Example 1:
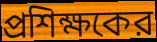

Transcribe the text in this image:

প্রশিক্ষকের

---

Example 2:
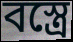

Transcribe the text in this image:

বস্ত্রে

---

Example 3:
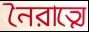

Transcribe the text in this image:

নৈরাত্মে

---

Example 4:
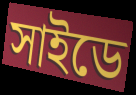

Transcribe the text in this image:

সাইডে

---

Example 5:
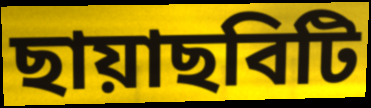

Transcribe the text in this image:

ছায়াছবিটি